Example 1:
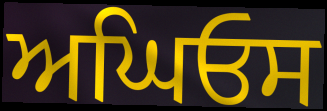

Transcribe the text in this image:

ਅਘਿਓਸ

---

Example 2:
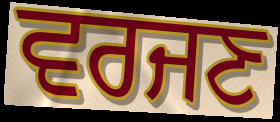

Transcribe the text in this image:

ਵਰਜਣ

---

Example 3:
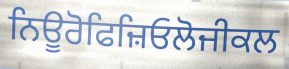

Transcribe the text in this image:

ਨਿਊਰੋਫਿਜ਼ਿਓਲੋਜੀਕਲ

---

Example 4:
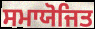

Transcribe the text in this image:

ਸਮਾਯੋਜਿਤ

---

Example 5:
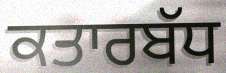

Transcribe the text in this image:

ਕਤਾਰਬੱਧ